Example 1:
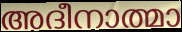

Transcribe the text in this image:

അദീനാത്മാ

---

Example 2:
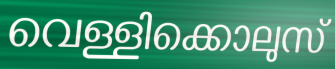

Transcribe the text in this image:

വെള്ളിക്കൊലുസ്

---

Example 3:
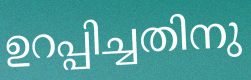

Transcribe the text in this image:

ഉറപ്പിച്ചതിനു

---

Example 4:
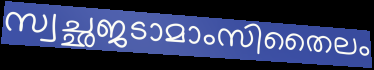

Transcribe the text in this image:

സ്വച്ഛജടാമാംസിതൈലം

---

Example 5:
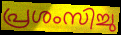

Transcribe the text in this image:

പ്രശംസിച്ചു